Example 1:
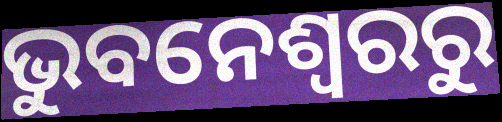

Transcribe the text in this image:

ଭୁବନେଶ୍ୱରରୁ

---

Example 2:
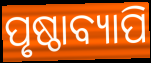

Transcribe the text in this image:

ପୃଷ୍ଠାବ୍ୟାପି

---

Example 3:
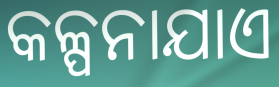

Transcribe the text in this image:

କଳ୍ପନାଯାଏ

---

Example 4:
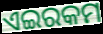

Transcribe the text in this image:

ଏଇରକମ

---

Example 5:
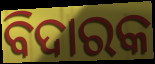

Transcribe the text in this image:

ବିଦାରକ